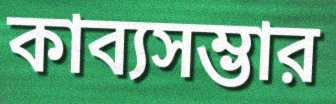
কাব্যসম্ভার